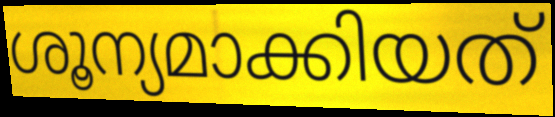
ശൂന്യമാക്കിയത്